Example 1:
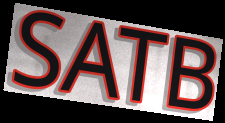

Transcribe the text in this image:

SATB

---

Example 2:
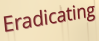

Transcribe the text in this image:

Eradicating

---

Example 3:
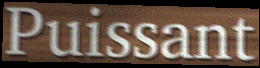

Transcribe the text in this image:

Puissant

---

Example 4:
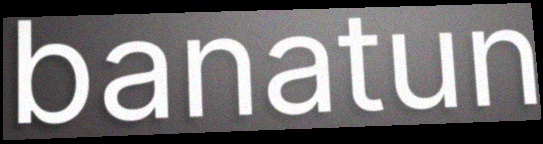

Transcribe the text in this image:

banatun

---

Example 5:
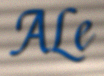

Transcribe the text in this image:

ALe